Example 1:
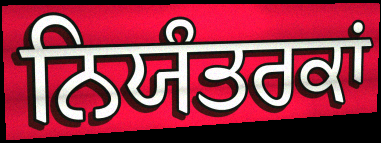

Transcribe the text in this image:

ਨਿਯੰਤਰਕਾਂ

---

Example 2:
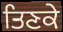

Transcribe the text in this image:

ਤਿਣਕੇ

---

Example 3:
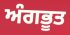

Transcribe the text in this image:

ਅੰਗਭੂਤ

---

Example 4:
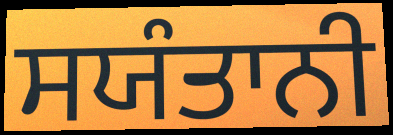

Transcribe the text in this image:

ਸਯੰਤਾਨੀ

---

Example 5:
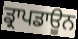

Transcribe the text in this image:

ਡ੍ਰਾਪਡਾਊਨ